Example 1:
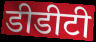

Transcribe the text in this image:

डीडीटी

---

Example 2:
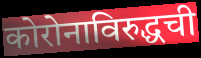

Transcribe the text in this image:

कोरोनाविरुद्धची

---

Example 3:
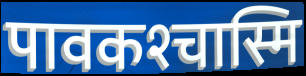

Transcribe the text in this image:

पावकश्चास्मि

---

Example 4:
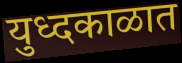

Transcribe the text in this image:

युध्दकाळात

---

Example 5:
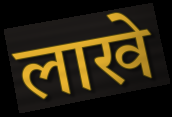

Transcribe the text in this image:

लाखे